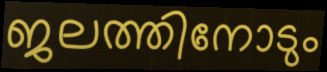
ജലത്തിനോടും